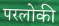
परलोकी